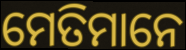
ମେତିମାନେ